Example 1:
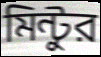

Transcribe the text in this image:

মিন্টুর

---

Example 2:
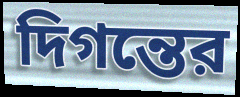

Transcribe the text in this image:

দিগন্তের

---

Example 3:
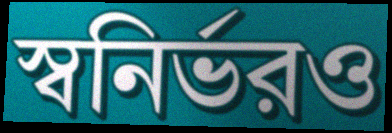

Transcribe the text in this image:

স্বনির্ভরও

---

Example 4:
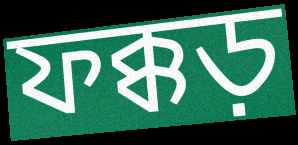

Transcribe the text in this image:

ফক্কড়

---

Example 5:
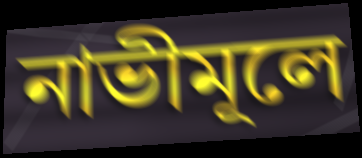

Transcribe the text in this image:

নাভীমূলে